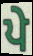
ਪੇ